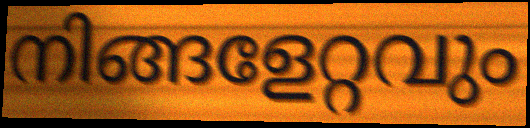
നിങ്ങളേറ്റവും